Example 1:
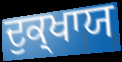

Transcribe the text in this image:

ਦੁਕ੍ਖਾਯ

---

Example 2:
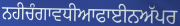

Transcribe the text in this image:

ਨਹੀਚੰਗਾਵਧੀਆਫਾਈਨਅੱਪਰ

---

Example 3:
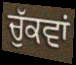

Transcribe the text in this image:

ਚੁੱਕਵਾਂ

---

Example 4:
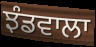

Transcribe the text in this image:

ਝੰਡਵਾਲਾ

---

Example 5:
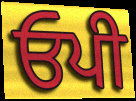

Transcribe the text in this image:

ਓਪੀ